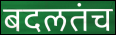
बदलतंच